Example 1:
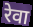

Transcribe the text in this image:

रेवा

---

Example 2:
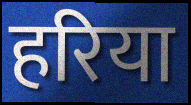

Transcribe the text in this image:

हरिया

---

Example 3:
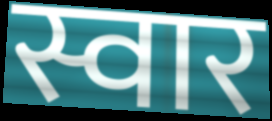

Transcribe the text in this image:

स्वार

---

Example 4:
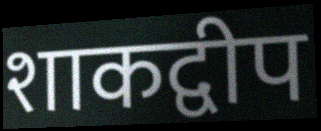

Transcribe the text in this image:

शाकद्वीप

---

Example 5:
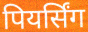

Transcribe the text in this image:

पियर्सिंग